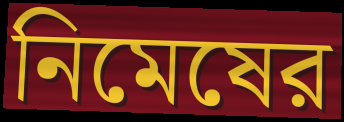
নিমেষের